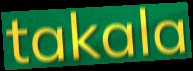
takala